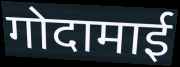
गोदामाई